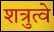
शत्रुत्वे